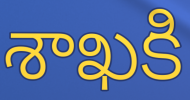
శాఖకి